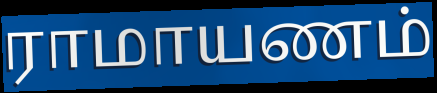
ராமாயணம்